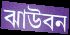
ঝাউবন